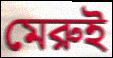
মেরুই